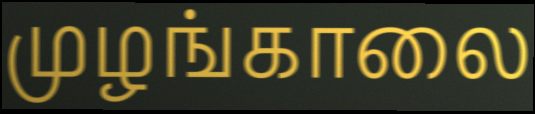
முழங்காலை